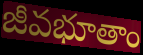
జీవభూతాం